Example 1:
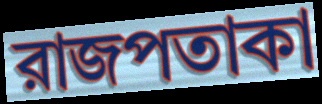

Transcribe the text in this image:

রাজপতাকা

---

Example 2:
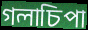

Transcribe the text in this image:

গলাচিপা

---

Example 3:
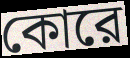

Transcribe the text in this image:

কোরে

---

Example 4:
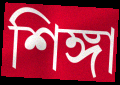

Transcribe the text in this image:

শিঙ্গা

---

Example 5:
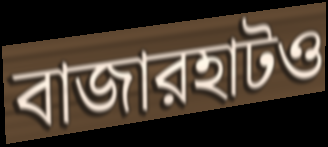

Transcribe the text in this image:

বাজারহাটও